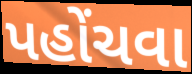
પહોંચવા